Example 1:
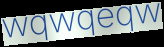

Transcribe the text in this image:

wqwqeqw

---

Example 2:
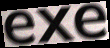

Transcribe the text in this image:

exe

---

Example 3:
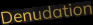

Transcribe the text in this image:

Denudation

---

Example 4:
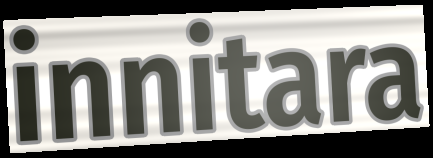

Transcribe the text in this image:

innitara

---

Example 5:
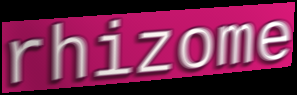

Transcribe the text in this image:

rhizome